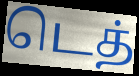
டெத்